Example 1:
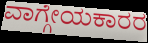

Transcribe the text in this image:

ವಾಗ್ಗೇಯಕಾರರ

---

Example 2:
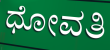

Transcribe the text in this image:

ಧೋವತಿ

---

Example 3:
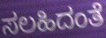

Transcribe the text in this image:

ಸಲಹಿದಂತೆ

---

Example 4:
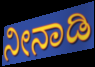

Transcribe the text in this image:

ನೀನಾಡಿ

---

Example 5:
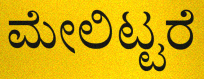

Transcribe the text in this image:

ಮೇಲಿಟ್ಟರೆ